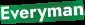
Everyman